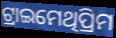
ଟ୍ରାଇମେଥିପ୍ରିମ